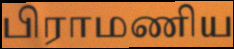
பிராமணிய